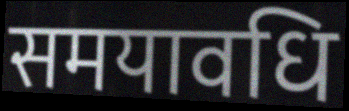
समयावधि